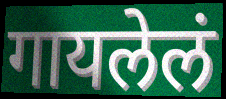
गायलेलं